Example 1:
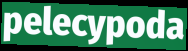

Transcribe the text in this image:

pelecypoda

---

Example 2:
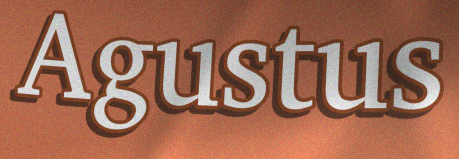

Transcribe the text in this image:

Agustus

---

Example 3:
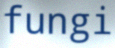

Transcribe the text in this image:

fungi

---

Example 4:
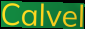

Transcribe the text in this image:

Calvel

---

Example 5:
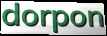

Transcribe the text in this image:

dorpon